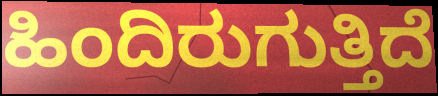
ಹಿಂದಿರುಗುತ್ತಿದೆ